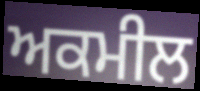
ਅਕਮੀਲ